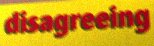
disagreeing